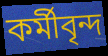
কর্মীবৃন্দ